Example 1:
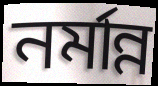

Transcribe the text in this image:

নর্মান্ন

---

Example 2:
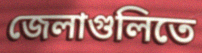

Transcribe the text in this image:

জেলাগুলিতে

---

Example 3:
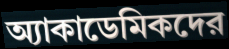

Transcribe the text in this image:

অ্যাকাডেমিকদের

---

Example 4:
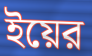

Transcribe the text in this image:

ইয়ের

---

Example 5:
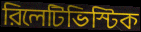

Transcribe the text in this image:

রিলেটিভিস্টিক